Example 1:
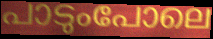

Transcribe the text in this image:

പാടുംപോലെ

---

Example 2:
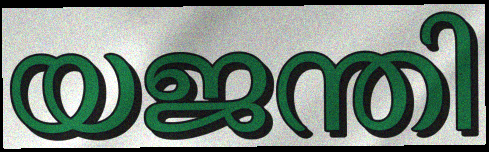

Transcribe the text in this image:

യജന്തി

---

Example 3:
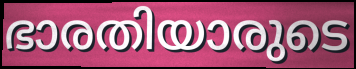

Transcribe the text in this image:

ഭാരതിയാരുടെ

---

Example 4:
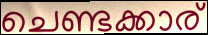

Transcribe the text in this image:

ചെണ്ടക്കാര്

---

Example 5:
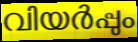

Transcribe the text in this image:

വിയർപ്പും